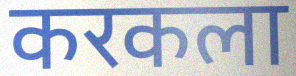
करकला